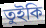
তুইকি